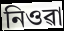
নিওৱা